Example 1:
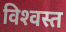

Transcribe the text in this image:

विश्‍वस्त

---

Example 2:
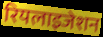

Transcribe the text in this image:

रियलाइजेशन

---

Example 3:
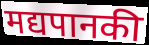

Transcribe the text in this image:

मद्यपानकी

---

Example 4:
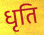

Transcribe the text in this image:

धृति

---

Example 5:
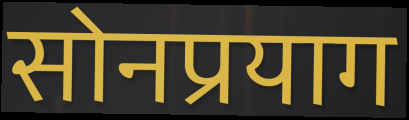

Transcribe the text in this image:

सोनप्रयाग